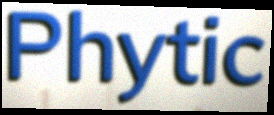
Phytic